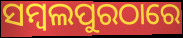
ସମ୍ବଲପୁରଠାରେ